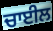
ਚਾਈਲ